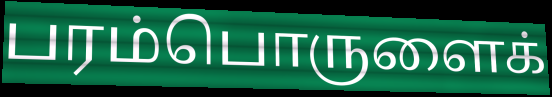
பரம்பொருளைக்